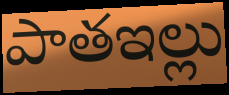
పాతఇల్లు